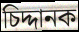
চিদ্দানক